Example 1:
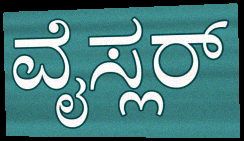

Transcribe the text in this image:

ವೈಸ್ಲರ್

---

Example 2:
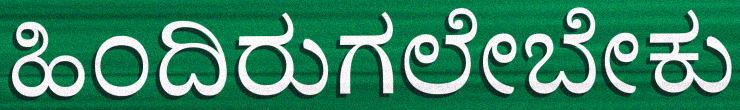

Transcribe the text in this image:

ಹಿಂದಿರುಗಲೇಬೇಕು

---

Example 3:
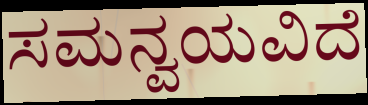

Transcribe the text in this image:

ಸಮನ್ವಯವಿದೆ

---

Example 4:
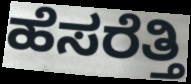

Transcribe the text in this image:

ಹೆಸರೆತ್ತಿ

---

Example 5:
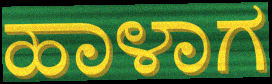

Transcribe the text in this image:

ಹಾಳಾಗ